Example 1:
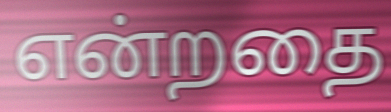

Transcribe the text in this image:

என்றதை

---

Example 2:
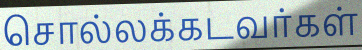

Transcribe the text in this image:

சொல்லக்கடவர்கள்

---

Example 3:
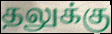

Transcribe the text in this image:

தலுக்கு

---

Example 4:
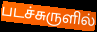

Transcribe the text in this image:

படச்சுருளில்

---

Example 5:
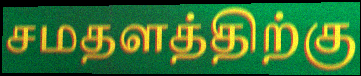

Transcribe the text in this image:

சமதளத்திற்கு